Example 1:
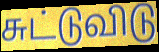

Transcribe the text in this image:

சுட்டுவிடு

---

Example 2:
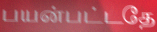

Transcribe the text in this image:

பயன்பட்டதே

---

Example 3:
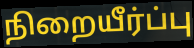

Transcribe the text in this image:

நிறையீர்ப்பு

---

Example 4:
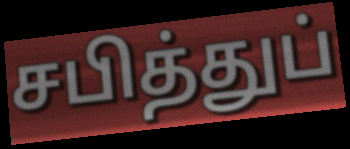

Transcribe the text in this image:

சபித்துப்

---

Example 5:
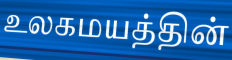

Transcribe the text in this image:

உலகமயத்தின்